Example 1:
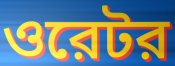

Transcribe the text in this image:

ওরেটর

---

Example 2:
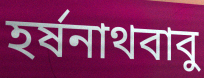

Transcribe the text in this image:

হর্ষনাথবাবু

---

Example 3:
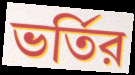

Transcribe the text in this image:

ভর্তির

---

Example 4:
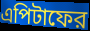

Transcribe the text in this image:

এপিটাফের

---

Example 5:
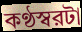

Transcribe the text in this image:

কণ্ঠস্বরটা